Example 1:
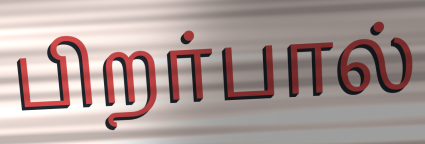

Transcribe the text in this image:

பிறர்பால்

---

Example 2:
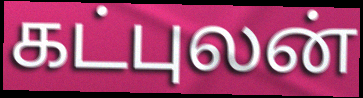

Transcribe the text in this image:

கட்புலன்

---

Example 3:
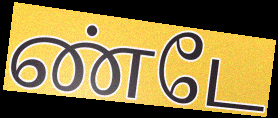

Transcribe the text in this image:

ண்டே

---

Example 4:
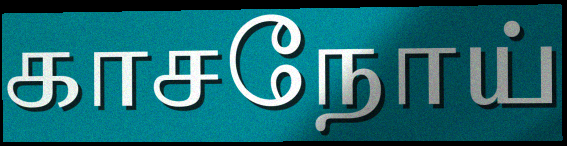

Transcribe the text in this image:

காசநோய்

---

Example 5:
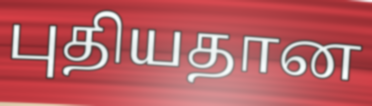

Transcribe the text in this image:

புதியதான